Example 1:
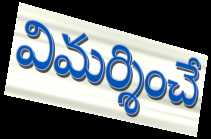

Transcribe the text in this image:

విమర్శించే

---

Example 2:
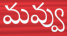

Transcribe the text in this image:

మవ్వు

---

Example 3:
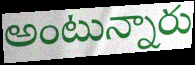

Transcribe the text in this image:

అంటున్నారు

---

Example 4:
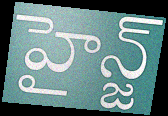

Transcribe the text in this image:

హైన్జ్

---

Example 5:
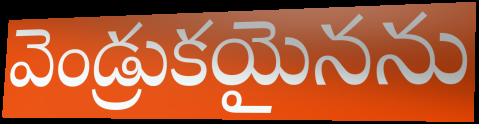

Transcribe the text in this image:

వెండ్రుకయైనను